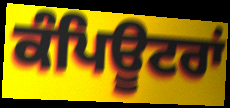
ਕੰਪਿਊਟਰਾਂ